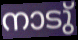
നാടു്